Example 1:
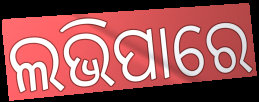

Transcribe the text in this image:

ଲଭିପାରେ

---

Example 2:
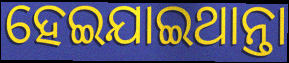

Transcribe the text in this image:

ହେଇଯାଇଥାନ୍ତା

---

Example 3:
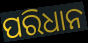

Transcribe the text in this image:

ପରିଧାନ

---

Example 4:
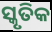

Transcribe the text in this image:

ସ୍କୃତିକ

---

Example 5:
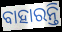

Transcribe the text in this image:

ବାହାରନ୍ତି